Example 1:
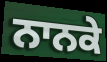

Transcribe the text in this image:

ਨਾਨਕੇ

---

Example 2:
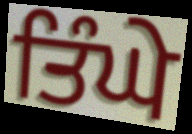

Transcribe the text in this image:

ਤਿੰਘੇ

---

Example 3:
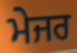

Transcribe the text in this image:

ਮੇਜਰ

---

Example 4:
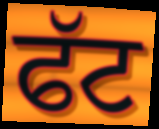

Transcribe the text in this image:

ਫੱਟ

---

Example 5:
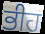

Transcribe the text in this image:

ਭੀਹ